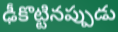
ఢీకొట్టినప్పుడు